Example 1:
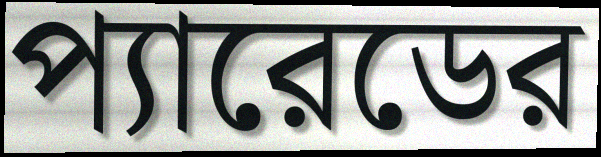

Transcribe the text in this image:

প্যারেডের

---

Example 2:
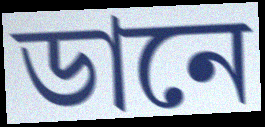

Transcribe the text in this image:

ডানে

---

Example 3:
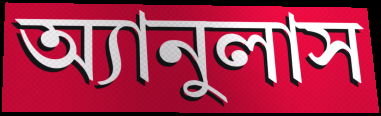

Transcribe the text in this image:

অ্যানুলাস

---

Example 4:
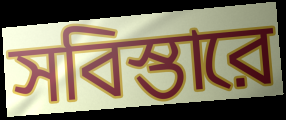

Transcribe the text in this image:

সবিস্তারে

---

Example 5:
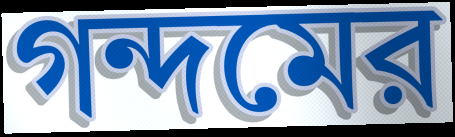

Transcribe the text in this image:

গন্দমের